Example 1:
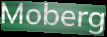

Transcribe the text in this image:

Moberg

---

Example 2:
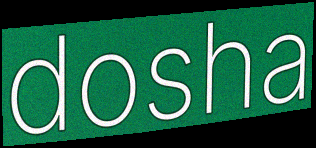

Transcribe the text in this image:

dosha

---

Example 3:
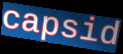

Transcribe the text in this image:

capsid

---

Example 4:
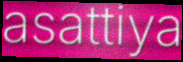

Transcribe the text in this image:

asattiya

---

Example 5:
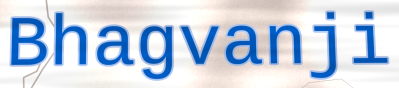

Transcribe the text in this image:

Bhagvanji